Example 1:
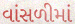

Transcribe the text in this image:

વાંસળીમાં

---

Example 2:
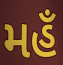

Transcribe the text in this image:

મહઁ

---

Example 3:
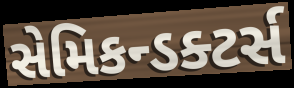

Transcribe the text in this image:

સેમિકન્ડક્ટર્સ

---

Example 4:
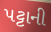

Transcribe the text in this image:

પટ્ટાની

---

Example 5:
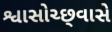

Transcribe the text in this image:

શ્વાસોચ્છ્‍વાસે